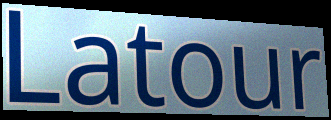
Latour